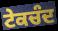
ਟੇਕਚੰਦ